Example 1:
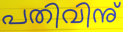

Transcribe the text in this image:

പതിവിനു്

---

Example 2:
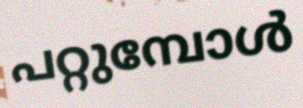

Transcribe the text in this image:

പറ്റുമ്പോൾ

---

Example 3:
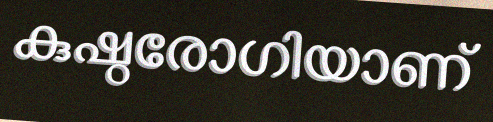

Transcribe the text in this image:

കുഷ്ഠരോഗിയാണ്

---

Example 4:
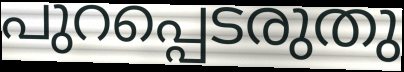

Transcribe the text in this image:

പുറപ്പെടരുതു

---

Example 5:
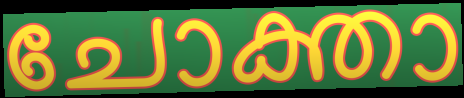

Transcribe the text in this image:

ചോക്താ